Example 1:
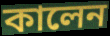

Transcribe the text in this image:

কালেন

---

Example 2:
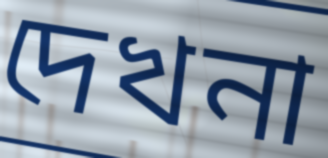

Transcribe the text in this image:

দেখনা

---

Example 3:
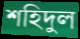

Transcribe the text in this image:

শহিদুল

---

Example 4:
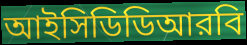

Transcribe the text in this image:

আইসিডিডিআরবি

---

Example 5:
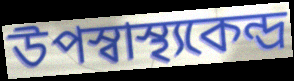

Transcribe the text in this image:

উপস্বাস্থ্যকেন্দ্র